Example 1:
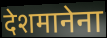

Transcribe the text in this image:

देशमानेना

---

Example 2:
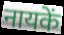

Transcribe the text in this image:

नायकें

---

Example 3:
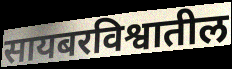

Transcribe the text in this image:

सायबरविश्वातील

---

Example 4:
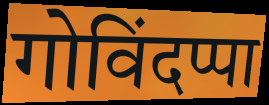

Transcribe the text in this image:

गोविंदप्पा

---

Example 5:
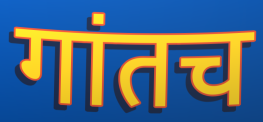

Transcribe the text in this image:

गांतच